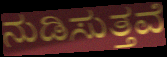
ನುಡಿಸುತ್ತವೆ